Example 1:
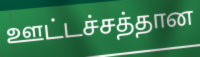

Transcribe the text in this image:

ஊட்டச்சத்தான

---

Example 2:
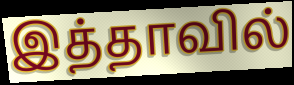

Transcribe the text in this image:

இத்தாவில்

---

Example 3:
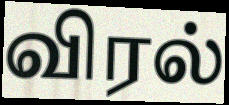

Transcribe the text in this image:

விரல்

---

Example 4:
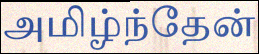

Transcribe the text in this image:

அமிழ்ந்தேன்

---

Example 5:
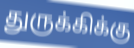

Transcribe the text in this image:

துருக்கிக்கு